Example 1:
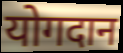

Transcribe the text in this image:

योगदान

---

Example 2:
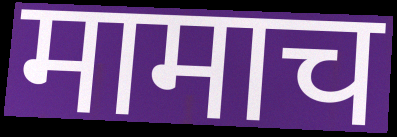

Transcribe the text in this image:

मामाच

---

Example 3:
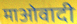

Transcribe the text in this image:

माओवादी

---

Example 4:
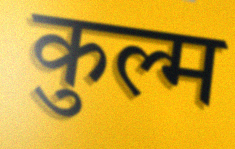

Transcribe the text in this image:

कुल्म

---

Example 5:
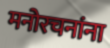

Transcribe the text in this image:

मनोरचनांना